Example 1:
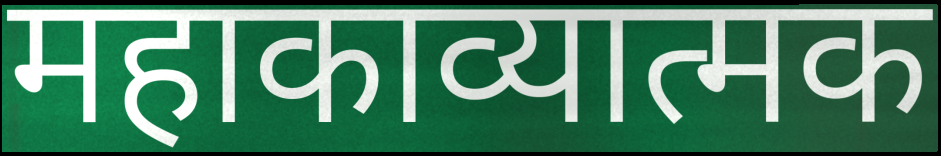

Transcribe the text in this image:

महाकाव्यात्मक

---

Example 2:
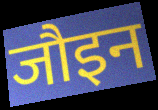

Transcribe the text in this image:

जौइन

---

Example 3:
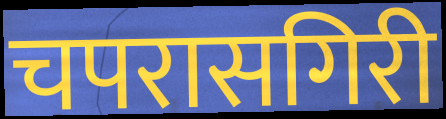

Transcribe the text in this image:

चपरासगिरी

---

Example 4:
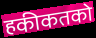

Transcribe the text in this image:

हकीकतको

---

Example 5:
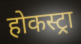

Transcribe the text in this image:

होकस्ट्रा